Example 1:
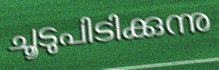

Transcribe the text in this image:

ചൂടുപിടിക്കുന്നു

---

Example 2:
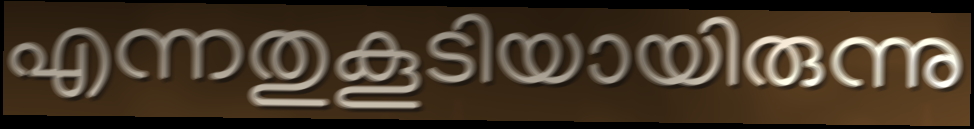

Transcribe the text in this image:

എന്നതുകൂടിയായിരുന്നു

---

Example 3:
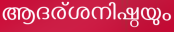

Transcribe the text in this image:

ആദര്ശനിഷ്ഠയും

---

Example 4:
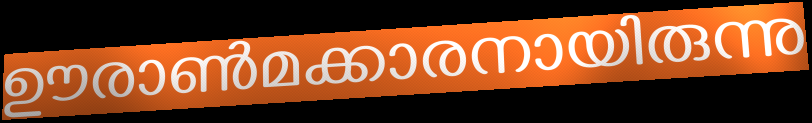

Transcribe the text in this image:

ഊരാൺമക്കാരനായിരുന്നു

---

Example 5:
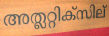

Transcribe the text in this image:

അത്ലറ്റിക്സില്